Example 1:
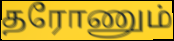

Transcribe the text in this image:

தரோணும்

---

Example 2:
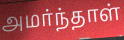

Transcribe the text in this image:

அமர்ந்தாள்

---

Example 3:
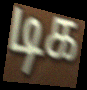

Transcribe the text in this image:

டிக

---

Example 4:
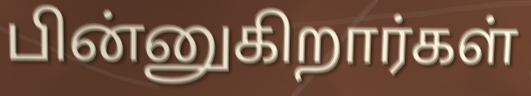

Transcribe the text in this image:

பின்னுகிறார்கள்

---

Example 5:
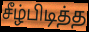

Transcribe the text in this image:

சீழ்பிடித்த